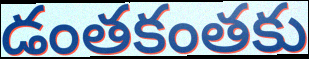
డంతకంతకు